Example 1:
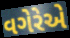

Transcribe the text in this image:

વગેરેએ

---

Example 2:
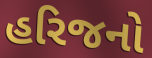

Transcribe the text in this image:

હરિજનો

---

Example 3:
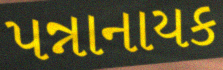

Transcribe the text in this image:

પન્નાનાયક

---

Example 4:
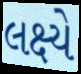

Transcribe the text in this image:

લક્ષ્યે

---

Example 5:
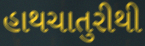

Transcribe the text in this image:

હાથચાતુરીથી